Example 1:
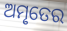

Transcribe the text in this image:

ଅମୃତେର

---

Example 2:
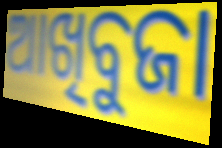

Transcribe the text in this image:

ଆଖିବୁଜା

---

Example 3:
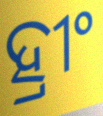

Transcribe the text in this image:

ହ୍ରୀଂ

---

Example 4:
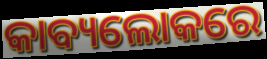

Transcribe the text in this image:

କାବ୍ୟଲୋକରେ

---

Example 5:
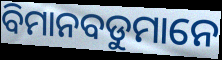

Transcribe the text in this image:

ବିମାନବଡୁମାନେ